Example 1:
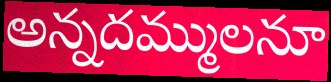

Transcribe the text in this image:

అన్నదమ్ములనూ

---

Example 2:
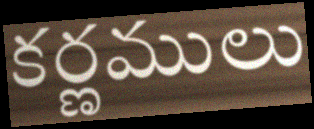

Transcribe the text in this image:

కర్ణములు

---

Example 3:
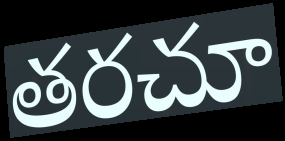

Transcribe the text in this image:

తరచూ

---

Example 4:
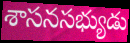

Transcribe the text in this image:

శాసనసభ్యుడు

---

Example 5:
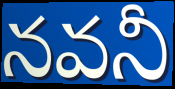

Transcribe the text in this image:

నవనీ